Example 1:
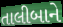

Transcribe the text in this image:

તાલીબાને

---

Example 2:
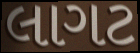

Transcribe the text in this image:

લાગટ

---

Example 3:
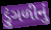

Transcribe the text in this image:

ડુંગળીનું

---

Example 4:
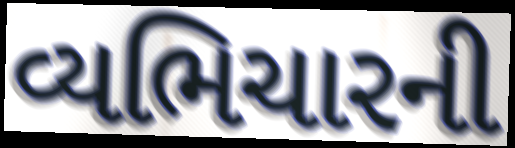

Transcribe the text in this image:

વ્યભિચારની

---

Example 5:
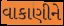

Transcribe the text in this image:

વાકાણીને